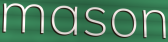
mason